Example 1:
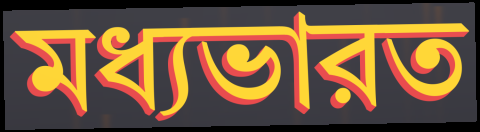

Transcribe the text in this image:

মধ্যভারত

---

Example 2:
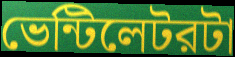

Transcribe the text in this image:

ভেন্টিলেটরটা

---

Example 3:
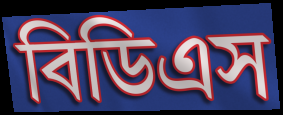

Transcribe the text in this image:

বিডিএস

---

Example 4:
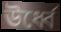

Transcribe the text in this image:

ঊর্ধ্বে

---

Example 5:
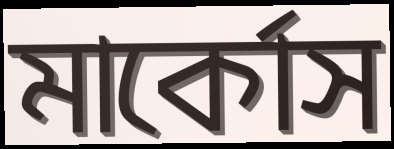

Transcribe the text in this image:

মার্কোস